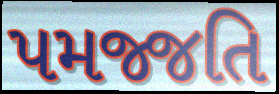
પમજ્જતિ